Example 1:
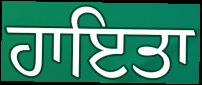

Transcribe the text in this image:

ਹਾਇਤਾ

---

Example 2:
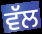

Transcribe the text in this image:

ਵੱਲ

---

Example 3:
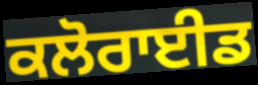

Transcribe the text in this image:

ਕਲੋਰਾਈਡ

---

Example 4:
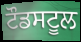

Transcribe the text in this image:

ਟੌਡਸਟੂਲ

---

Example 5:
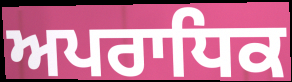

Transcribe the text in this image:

ਅਪਰਾਧਿਕ